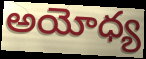
అయోధ్య